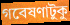
গবেষণাটুকু